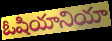
ఓషియానియా